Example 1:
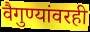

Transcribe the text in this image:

वैगुण्यांवरही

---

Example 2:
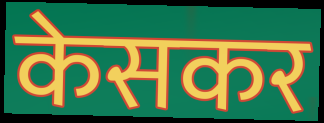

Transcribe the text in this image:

केसकर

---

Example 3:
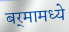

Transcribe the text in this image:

बर्मामध्ये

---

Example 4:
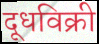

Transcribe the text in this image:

दूधविक्री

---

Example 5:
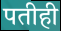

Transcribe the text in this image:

पतीही